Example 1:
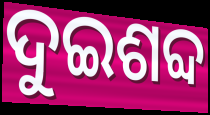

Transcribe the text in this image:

ଦୁଇଶବ୍ଦ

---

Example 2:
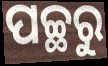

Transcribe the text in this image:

ପଚ୍ଛରୁ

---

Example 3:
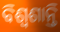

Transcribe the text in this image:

ବିଶ୍ୱଶାନ୍ତି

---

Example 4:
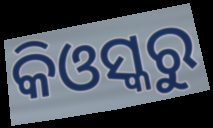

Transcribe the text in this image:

କିଓସ୍କରୁ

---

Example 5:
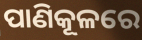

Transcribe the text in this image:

ପାଣିକୂଳରେ